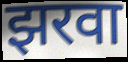
झरवा